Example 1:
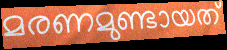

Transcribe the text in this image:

മരണമുണ്ടായത്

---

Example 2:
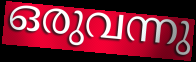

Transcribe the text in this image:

ഒരുവന്നു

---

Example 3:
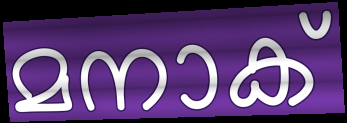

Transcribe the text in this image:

മനാക്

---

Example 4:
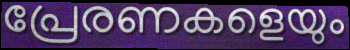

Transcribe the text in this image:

പ്രേരണകളെയും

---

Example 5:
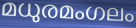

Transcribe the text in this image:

മധുരമംഗലം